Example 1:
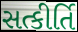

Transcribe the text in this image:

સત્કીર્તિ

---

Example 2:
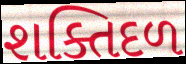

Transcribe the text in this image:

શક્તિદળ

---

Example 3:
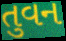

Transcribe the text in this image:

તુવન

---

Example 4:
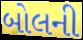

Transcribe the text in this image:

બોલની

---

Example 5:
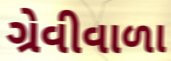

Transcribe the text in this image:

ગ્રેવીવાળા